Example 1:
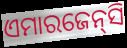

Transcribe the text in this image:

ଏମାରଜେନ୍‌ସି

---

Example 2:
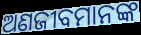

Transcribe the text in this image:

ଅଣଜୀବମାନଙ୍କ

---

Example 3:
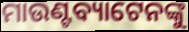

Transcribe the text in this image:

ମାଉଣ୍ଟବ୍ୟାଟେନଙ୍କୁ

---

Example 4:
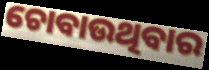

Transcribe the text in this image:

ଚୋବାଉଥିବାର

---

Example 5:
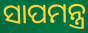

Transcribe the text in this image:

ସାପମନ୍ତ୍ର